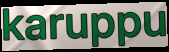
karuppu